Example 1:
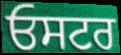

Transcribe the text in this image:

ਓਸਟਰ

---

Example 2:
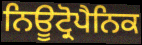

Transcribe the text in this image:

ਨਿਊਟ੍ਰੋਪੈਨਿਕ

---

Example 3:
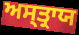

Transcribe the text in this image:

ਅਸ੍ਤ੍ਰਾਯ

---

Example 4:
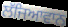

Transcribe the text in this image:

ਲੱਜਿਆਵਾਨ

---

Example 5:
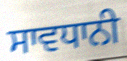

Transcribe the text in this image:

ਸਾਵਧਾਨੀ